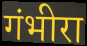
गंभीरा